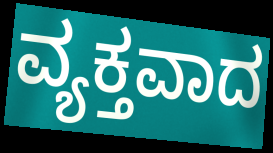
ವ್ಯಕ್ತವಾದ